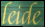
leide